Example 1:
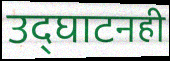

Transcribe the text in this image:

उद्घाटनही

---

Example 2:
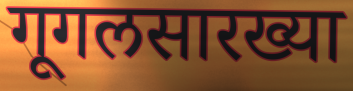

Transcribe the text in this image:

गूगलसारख्या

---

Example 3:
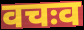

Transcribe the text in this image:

वचःव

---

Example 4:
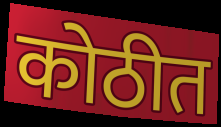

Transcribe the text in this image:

कोठीत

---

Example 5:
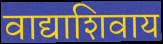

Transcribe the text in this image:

वाद्याशिवाय